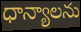
ధాన్యాలను